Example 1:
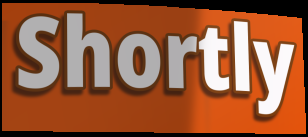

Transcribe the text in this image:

Shortly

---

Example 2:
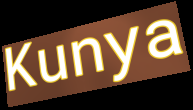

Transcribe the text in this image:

Kunya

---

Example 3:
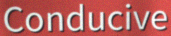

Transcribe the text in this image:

Conducive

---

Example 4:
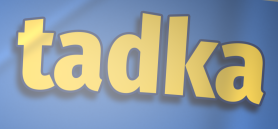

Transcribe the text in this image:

tadka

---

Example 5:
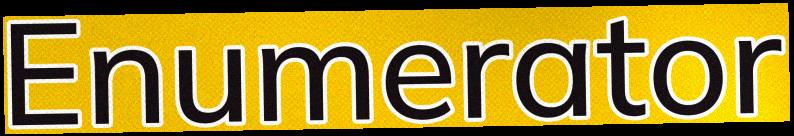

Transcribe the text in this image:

Enumerator